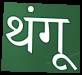
थंगू